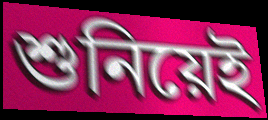
শুনিয়েই